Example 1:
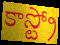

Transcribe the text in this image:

కాస్ట్రో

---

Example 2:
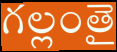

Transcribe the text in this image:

గల్లంతై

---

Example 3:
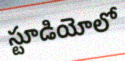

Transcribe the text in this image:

స్టూడియోలో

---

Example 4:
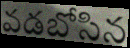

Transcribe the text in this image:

వడబోసిన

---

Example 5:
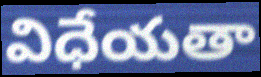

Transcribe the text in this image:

విధేయతా